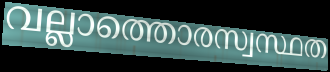
വല്ലാത്തൊരസ്വസ്ഥത